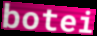
botei